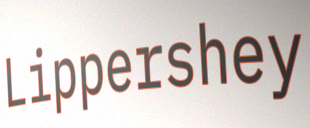
Lippershey